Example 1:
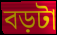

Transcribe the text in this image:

বড়টা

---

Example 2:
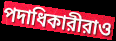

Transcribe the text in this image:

পদাধিকারীরাও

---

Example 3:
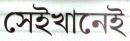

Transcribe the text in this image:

সেইখানেই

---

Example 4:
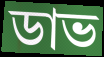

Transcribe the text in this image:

ডাভ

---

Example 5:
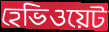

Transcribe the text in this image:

হেভিওয়েট